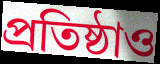
প্রতিষ্ঠাও